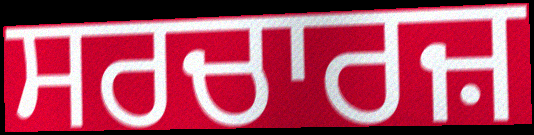
ਸਰਚਾਰਜ਼